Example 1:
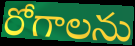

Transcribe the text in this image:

రోగాలను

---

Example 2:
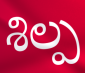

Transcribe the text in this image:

శిల్ప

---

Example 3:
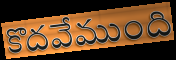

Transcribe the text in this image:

కొదవేముంది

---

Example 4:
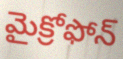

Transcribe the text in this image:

మైక్రోఫోన్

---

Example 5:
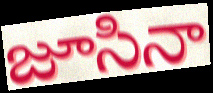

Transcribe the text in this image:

జూసినా